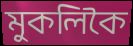
মুকলিকৈ